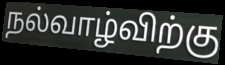
நல்வாழ்விற்கு